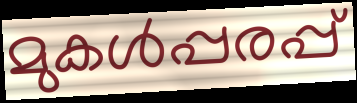
മുകൾപ്പരപ്പ്